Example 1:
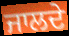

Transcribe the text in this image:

ਜਾਲਦੇ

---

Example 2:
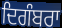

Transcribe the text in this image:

ਦਿਗੰਬਰਾ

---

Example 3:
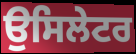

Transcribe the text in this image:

ਉਸਿਲੇਟਰ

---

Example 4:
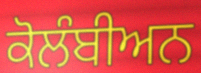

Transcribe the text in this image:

ਕੋਲੰਬੀਅਨ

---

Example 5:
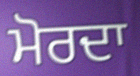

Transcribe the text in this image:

ਮੋਰਦਾ